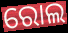
ରୋଲ